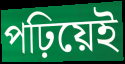
পঢ়িয়েই